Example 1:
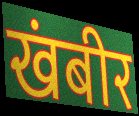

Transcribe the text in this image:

खंबीर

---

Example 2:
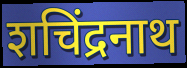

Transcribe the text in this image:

शचिंद्रनाथ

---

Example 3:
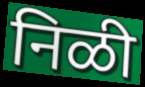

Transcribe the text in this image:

निळी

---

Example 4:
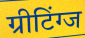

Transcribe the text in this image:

ग्रीटिंग्ज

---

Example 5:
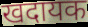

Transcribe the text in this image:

खदायक